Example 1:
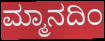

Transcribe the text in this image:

ಮ್ಮಾನದಿಂ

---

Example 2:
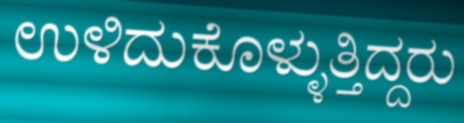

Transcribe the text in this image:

ಉಳಿದುಕೊಳ್ಳುತ್ತಿದ್ದರು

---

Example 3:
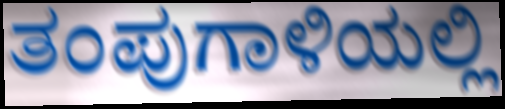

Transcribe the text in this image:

ತಂಪುಗಾಳಿಯಲ್ಲಿ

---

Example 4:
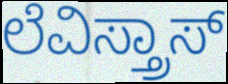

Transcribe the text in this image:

ಲೆವಿಸ್ತ್ರಾಸ್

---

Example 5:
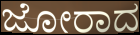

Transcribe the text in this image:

ಜೋರಾದ